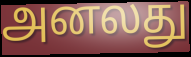
அனலது